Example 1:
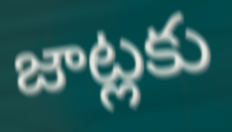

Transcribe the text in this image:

జాట్లకు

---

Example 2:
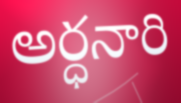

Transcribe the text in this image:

అర్ధనారి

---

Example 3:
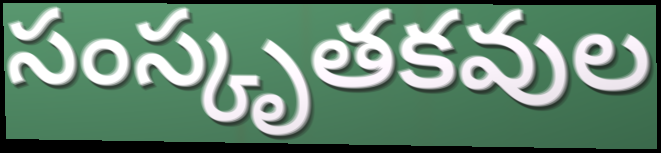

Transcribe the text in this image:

సంస్కృతకవుల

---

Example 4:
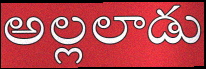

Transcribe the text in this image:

అల్లలాడు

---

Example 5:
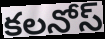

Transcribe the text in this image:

కలనోస్